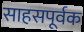
साहसपूर्वक